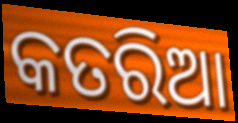
କତରିଆ